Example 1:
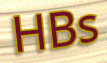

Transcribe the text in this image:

HBs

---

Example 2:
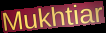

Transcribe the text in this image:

Mukhtiar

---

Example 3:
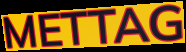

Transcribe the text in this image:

METTAG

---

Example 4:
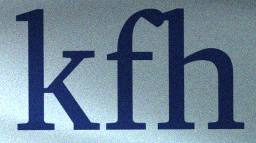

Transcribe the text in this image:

kfh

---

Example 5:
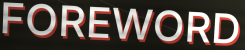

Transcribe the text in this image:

FOREWORD